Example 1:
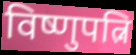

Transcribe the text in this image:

विष्णुपत्नि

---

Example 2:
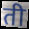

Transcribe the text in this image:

ती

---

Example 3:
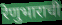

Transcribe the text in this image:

रेणुभाराची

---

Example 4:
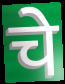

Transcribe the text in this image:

चे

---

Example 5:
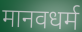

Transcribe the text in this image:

मानवधर्म